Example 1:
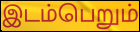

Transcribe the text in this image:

இடம்பெறும்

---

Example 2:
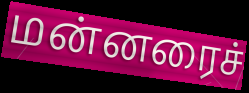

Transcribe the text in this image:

மன்னரைச்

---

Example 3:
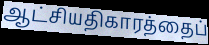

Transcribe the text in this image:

ஆட்சியதிகாரத்தைப்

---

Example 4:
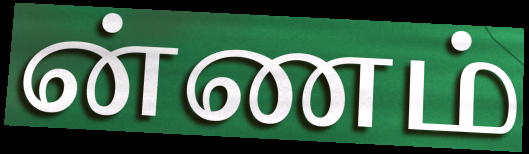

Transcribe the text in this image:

ன்ணம்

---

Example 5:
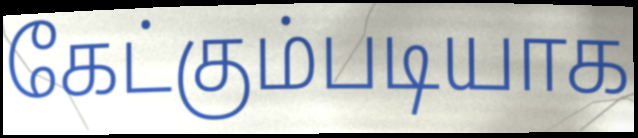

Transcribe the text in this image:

கேட்கும்படியாக